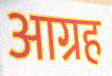
आग्रह